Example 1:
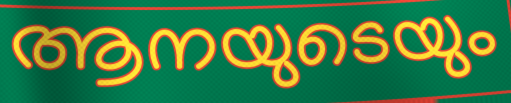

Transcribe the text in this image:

ആനയുടെയും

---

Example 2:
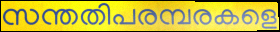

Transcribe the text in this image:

സന്തതിപരമ്പരകളെ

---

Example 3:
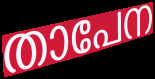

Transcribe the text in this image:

താപേന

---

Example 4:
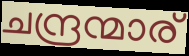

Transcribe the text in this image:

ചന്ദ്രന്മാര്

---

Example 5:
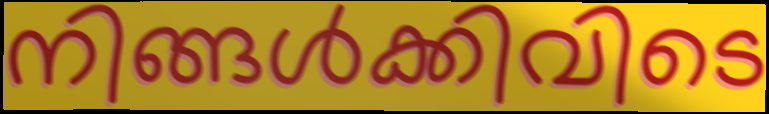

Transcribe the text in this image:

നിങ്ങൾക്കിവിടെ